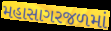
મહાસાગરજળમાં